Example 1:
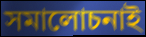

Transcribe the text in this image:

সমালোচনাই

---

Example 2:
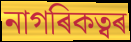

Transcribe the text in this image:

নাগৰিকত্বৰ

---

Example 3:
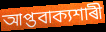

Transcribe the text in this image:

আপ্তবাক্যশাৰী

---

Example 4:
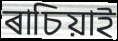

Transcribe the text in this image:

ৰাচিয়াই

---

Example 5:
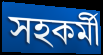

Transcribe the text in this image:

সহকৰ্মী